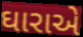
ઘારાએ